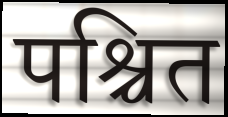
पश्चित